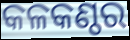
କଳକଣ୍ଠର